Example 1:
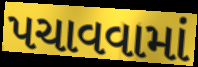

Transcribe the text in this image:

પચાવવામાં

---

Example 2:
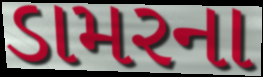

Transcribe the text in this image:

ડામરના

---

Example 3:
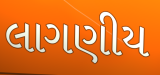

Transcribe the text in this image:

લાગણીય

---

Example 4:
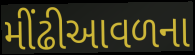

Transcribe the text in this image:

મીંઢીઆવળના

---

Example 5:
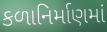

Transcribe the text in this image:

કળાનિર્માણમાં